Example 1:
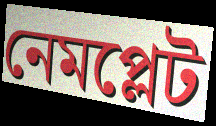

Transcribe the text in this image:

নেমপ্লেট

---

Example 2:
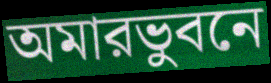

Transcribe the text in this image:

অমারভুবনে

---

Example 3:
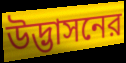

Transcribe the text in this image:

উদ্ভাসনের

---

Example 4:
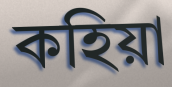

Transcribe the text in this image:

কহিয়া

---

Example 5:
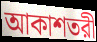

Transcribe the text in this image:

আকাশতরী